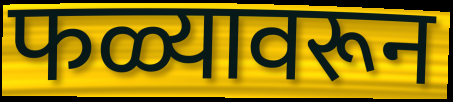
फळ्यावरून